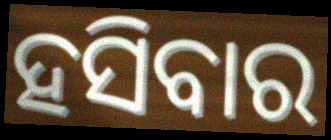
ହସିବାର